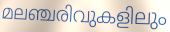
മലഞ്ചരിവുകളിലും